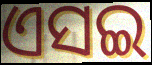
ଏସଇ